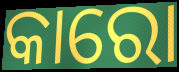
କାରୋ